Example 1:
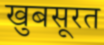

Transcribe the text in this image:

खुबसूरत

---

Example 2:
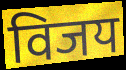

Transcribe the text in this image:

विजय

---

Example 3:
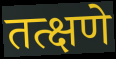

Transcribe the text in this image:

तत्क्षणे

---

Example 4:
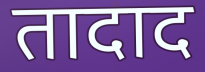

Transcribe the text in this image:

तादाद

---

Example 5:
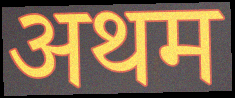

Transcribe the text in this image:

अथम